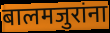
बालमजुरांना